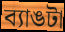
ব্যাঙটা